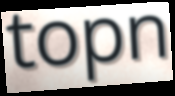
topn